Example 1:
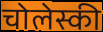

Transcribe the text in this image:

चोलेस्की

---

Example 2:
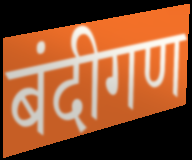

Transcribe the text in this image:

बंदीगण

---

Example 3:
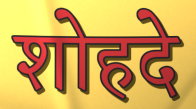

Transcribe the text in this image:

शोहदे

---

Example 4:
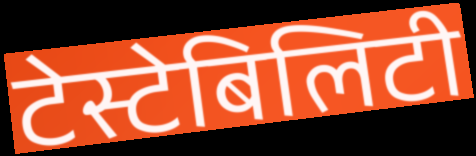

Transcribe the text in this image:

टेस्टेबिलिटी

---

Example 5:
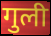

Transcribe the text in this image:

गुली